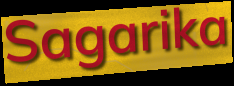
Sagarika